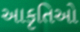
આકૃતિઓ